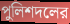
পুলিশদলের